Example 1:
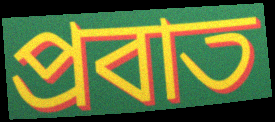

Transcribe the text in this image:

প্রবাত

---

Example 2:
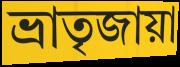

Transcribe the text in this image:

ভ্রাতৃজায়া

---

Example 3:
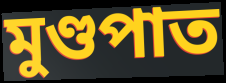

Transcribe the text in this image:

মুণ্ডপাত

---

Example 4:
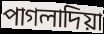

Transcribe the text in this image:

পাগলাদিয়া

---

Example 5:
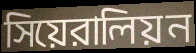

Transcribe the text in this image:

সিয়েরালিয়ন